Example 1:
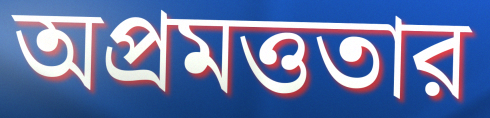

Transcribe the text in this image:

অপ্রমত্ততার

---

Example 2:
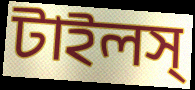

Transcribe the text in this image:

টাইলস্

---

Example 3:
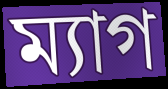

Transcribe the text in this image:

ম্যাগ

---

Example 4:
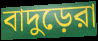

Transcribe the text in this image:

বাদুড়েরা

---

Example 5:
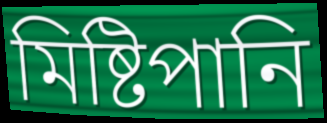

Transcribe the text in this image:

মিষ্টিপানি